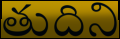
తుదిని